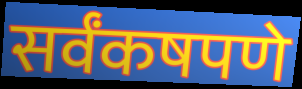
सर्वंकषपणे